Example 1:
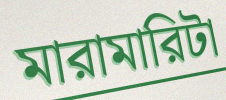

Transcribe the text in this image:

মারামারিটা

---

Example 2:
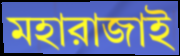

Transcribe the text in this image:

মহারাজাই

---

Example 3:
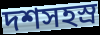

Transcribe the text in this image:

দশসহস্র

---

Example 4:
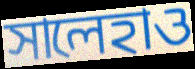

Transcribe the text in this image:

সালেহাও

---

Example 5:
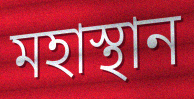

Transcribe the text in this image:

মহাস্থান